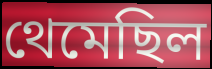
থেমেছিল